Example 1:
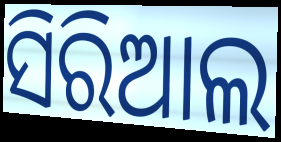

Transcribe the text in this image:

ସିରିଆଲ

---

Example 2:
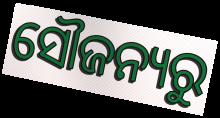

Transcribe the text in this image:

ସୌଜନ୍ୟରୁ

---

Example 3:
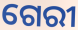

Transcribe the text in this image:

ଗେରୀ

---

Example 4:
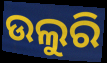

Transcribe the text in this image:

ଉଲୁରି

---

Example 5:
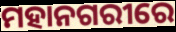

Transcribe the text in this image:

ମହାନଗରୀରେ